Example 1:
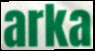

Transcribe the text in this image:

arka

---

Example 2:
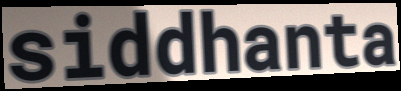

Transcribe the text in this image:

siddhanta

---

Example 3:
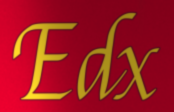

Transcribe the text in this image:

Edx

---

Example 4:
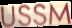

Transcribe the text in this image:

USSM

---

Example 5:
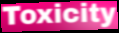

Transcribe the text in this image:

Toxicity